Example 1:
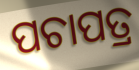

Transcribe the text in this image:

ପଚାପତ୍ର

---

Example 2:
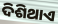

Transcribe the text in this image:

ଦିଶିଥାଏ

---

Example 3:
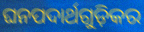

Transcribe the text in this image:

ଘନପଦାର୍ଥଗୁଡ଼ିକର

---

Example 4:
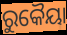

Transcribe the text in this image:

ରୁକୈୟା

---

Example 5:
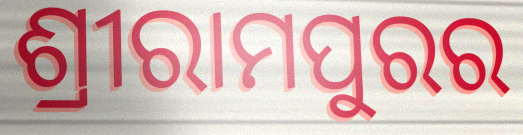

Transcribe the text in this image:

ଶ୍ରୀରାମପୁରର